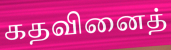
கதவினைத்